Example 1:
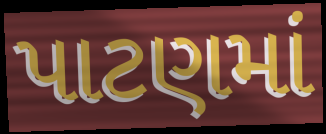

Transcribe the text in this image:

પાટણમાં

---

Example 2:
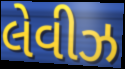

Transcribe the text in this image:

લેવીઝ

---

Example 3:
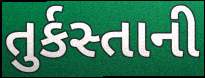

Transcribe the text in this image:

તુર્કસ્તાની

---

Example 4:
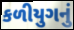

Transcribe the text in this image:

કળીયુગનું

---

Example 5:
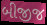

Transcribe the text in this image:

બીજીજ